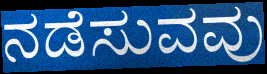
ನಡೆಸುವವು